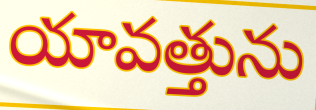
యావత్తును